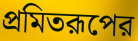
প্রমিতরূপের